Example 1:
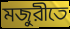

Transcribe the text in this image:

মজুরীতে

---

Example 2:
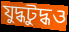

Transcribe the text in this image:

যুদ্ধটুদ্ধও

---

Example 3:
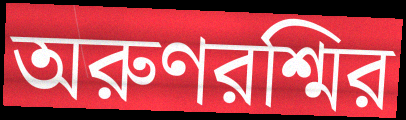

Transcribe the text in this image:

অরুণরশ্মির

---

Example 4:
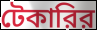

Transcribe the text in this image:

টেকারির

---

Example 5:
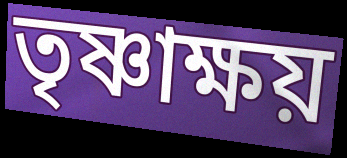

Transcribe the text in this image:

তৃষ্ণাক্ষয়